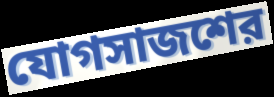
যোগসাজশের